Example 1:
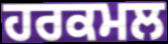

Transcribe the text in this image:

ਹਰਕਮਲ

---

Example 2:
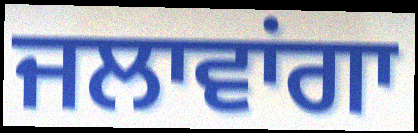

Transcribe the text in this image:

ਜਲਾਵਾਂਗਾ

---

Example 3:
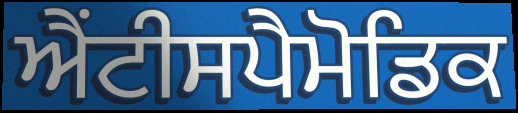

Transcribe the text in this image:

ਐਂਟੀਸਪੈਮੋਡਿਕ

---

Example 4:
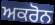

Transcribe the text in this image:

ਅਕਰੋਨ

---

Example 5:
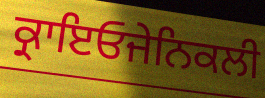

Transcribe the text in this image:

ਕ੍ਰਾਇਓਜੇਨਿਕਲੀ